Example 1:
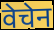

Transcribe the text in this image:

वेचेन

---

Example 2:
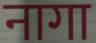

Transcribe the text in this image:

नागा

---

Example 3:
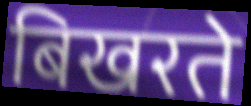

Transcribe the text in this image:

बिखरते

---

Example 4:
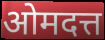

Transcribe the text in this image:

ओमदत्त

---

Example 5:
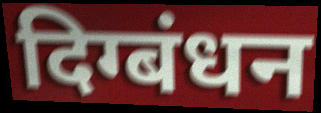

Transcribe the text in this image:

दिग्बंधन